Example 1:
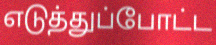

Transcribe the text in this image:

எடுத்துப்போட்ட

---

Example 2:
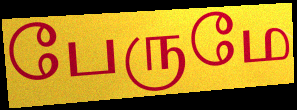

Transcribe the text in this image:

பேருமே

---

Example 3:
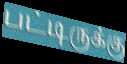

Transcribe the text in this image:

பட்டிருக்கு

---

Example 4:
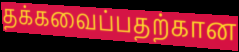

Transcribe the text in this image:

தக்கவைப்பதற்கான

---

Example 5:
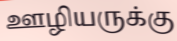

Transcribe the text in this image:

ஊழியருக்கு